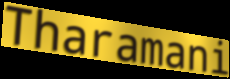
Tharamani